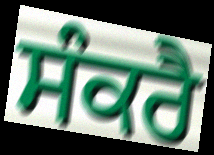
ਸੰਕਰੈ